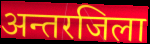
अन्तरजिला